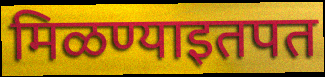
मिळण्याइतपत